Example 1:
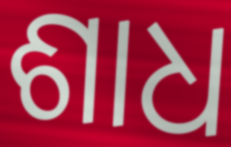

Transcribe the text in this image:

ଶାଧ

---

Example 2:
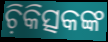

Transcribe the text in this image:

ଚ଼ିକିତ୍ସକଙ୍କ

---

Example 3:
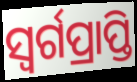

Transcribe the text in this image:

ସ୍ଵର୍ଗପ୍ରାପ୍ତି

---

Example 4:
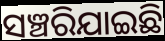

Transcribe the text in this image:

ସଞ୍ଚରିଯାଇଛି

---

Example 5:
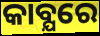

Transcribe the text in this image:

କାବ୍ଯରେ